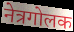
नेत्रगोलक